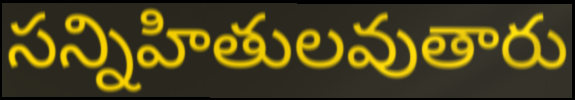
సన్నిహితులవుతారు